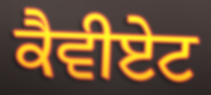
ਕੈਵੀਏਟ